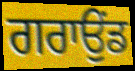
ਗਰਾਉਂਡ